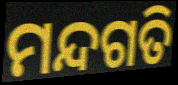
ମନ୍ଦଗତି